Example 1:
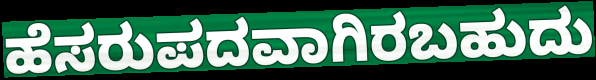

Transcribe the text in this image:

ಹೆಸರುಪದವಾಗಿರಬಹುದು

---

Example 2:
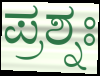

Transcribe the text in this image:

ಪ್ರಶ್ನಃ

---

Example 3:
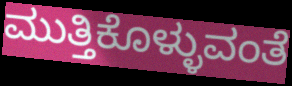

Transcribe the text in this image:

ಮುತ್ತಿಕೊಳ್ಳುವಂತೆ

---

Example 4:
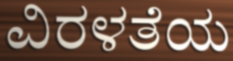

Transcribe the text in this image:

ವಿರಳತೆಯ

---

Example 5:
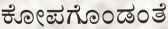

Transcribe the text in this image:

ಕೋಪಗೊಂಡಂತೆ